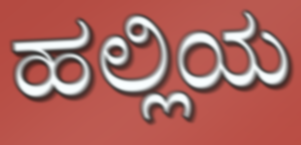
ಹಲ್ಲಿಯ